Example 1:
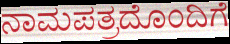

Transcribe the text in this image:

ನಾಮಪತ್ರದೊಂದಿಗೆ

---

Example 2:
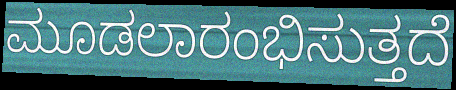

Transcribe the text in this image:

ಮೂಡಲಾರಂಭಿಸುತ್ತದೆ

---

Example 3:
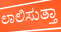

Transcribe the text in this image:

ಲಾಲಿಸುತ್ತಾ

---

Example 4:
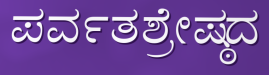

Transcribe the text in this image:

ಪರ್ವತಶ್ರೇಷ್ಠದ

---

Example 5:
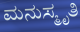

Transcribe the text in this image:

ಮನುಸ್ಮೃತಿ